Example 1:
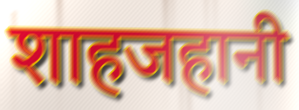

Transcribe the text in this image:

शाहजहानी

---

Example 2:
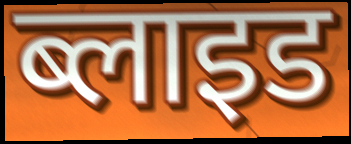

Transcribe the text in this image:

ब्लाइड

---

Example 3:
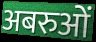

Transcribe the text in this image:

अबरुओं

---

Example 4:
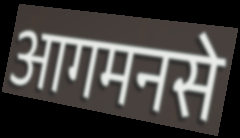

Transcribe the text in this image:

आगमनसे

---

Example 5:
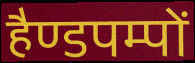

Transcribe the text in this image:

हैण्डपम्पों